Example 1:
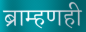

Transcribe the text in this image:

ब्राम्हणही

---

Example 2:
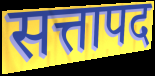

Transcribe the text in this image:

सत्तापद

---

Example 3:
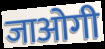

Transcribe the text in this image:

जाओगी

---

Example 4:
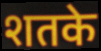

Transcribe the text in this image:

शतके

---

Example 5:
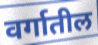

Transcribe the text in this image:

वर्गातील